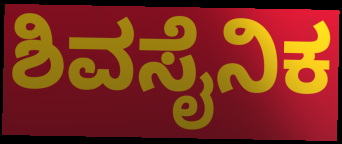
ಶಿವಸೈನಿಕ